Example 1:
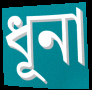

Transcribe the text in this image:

ধূনা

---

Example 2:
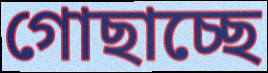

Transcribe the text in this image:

গোছাচ্ছে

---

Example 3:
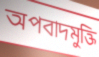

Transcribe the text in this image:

অপবাদমুক্তি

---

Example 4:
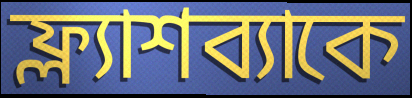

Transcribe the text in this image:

ফ্ল্যাশব্যাকে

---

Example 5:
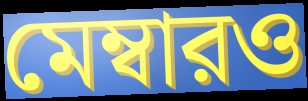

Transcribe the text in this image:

মেম্বারও